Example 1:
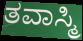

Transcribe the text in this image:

ತವಾಸ್ಮಿ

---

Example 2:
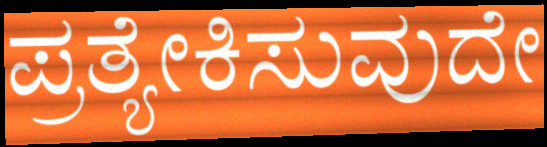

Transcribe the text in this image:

ಪ್ರತ್ಯೇಕಿಸುವುದೇ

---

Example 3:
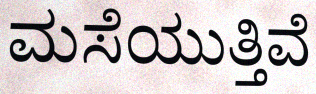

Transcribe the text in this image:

ಮಸೆಯುತ್ತಿವೆ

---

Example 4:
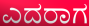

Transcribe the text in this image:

ಎದರಾಗ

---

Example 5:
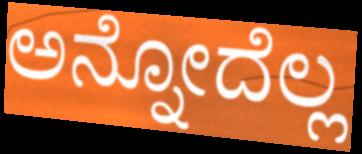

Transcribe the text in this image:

ಅನ್ನೋದೆಲ್ಲ